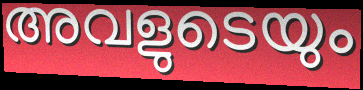
അവളുടെയും